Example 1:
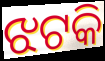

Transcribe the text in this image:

ଝଟକି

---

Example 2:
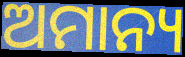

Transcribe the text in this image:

ଅମାନ୍ୟ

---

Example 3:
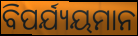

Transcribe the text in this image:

ବିପର୍ଯ୍ୟୟମାନ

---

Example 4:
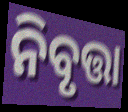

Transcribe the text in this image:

ନିବୃତ୍ତା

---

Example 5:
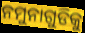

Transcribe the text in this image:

ନମୁନାଗୁଡିକୁ